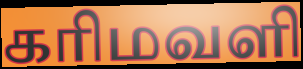
கரிமவளி